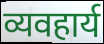
व्यवहार्य